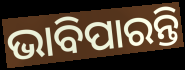
ଭାବିପାରନ୍ତି